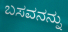
ಬಸವನನ್ನು